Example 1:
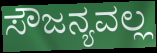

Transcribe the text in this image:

ಸೌಜನ್ಯವಲ್ಲ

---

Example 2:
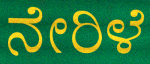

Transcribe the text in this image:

ನೇರಿಳೆ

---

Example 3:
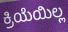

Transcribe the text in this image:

ಕ್ರಿಯೆಯಿಲ್ಲ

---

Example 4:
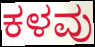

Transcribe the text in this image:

ಕಳವು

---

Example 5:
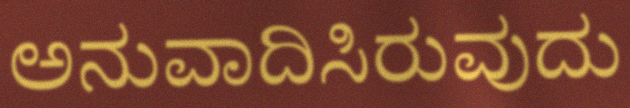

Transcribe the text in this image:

ಅನುವಾದಿಸಿರುವುದು